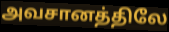
அவசானத்திலே